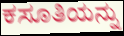
ಕಸೂತಿಯನ್ನು